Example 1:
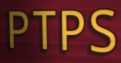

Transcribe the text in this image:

PTPS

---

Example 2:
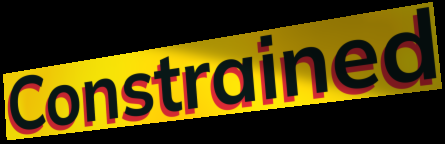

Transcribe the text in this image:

Constrained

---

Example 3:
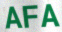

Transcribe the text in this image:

AFA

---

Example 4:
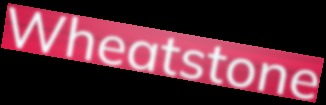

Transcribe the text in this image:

Wheatstone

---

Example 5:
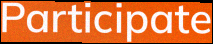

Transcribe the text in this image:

Participate